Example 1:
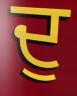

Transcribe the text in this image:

ਦੁ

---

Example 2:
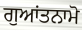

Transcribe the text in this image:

ਗੁਆਂਤਨਾਮੋ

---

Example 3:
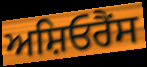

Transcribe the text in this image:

ਅਸ਼ਿਓਰੈਂਸ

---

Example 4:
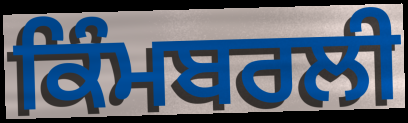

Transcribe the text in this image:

ਕਿੰਮਬਰਲੀ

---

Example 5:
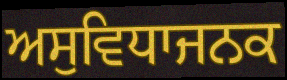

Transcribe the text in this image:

ਅਸੁਵਿਧਾਜਨਕ